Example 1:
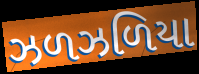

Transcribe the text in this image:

ઝળઝળિયા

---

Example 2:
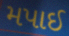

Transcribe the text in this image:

મપાઈ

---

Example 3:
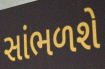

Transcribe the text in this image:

સાંભળશે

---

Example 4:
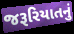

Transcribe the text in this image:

જરૂરિયાતનું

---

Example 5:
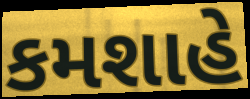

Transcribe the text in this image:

કમશાહે